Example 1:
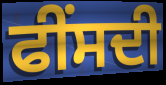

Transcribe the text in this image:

ਫੀਂਸਦੀ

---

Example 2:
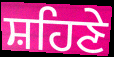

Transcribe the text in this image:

ਸ਼ਹਿਣੇ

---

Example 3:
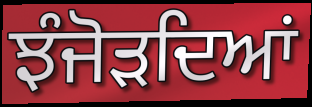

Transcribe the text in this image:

ਝੰਜੋੜਦਿਆਂ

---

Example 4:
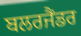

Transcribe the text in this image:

ਬਲਰਜੈਂਡਰ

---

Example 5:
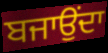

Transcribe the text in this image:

ਬਜਾਉਂਦਾ